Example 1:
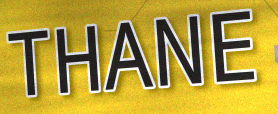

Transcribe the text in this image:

THANE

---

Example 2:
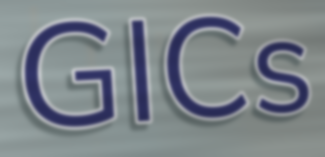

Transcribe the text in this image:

GICs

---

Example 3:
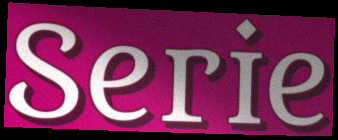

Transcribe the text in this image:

Serie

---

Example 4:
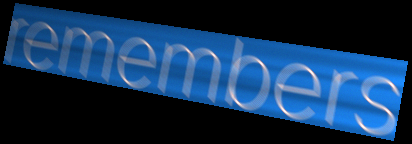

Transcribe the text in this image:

remembers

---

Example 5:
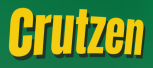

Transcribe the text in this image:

Crutzen